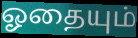
ஓதையும்